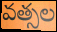
వత్సల